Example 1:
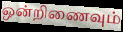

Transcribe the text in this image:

ஒன்றிணைவும்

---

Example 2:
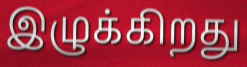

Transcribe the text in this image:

இழுக்கிறது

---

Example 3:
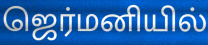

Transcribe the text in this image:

ஜெர்மனியில்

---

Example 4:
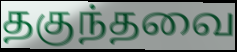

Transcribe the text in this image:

தகுந்தவை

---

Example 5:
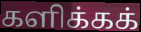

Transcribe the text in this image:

களிக்கக்